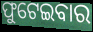
ଫୁଟେଇବାର